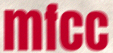
mfcc